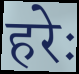
हरेः